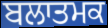
ਬਲਾਤਮਕ